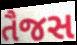
તૈજસ